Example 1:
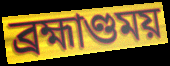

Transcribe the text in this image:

ব্রহ্মাণ্ডময়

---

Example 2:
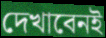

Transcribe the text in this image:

দেখাবেনই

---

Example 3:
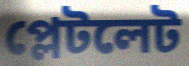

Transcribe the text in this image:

প্লেটলেট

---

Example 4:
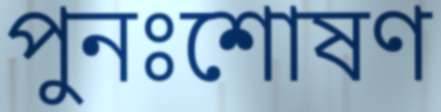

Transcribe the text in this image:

পুনঃশোষণ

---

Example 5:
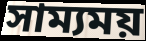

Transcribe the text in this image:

সাম্যময়